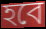
হবে